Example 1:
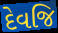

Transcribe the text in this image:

દેવજિ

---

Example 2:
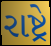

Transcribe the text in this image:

રાષ્ટ્રે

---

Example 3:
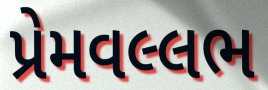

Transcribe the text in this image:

પ્રેમવલ્લભ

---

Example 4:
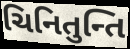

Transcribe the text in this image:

ચિનિતુન્તિ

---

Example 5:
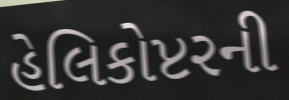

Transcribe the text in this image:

હેલિકોપ્ટરની